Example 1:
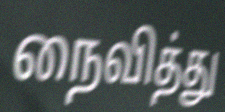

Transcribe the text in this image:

நைவித்து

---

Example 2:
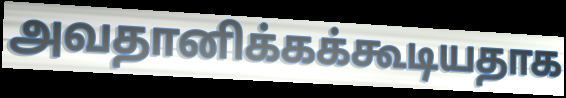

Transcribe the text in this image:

அவதானிக்கக்கூடியதாக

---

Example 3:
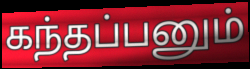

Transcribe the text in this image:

கந்தப்பனும்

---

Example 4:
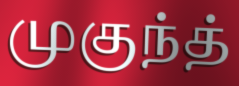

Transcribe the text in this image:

முகுந்த்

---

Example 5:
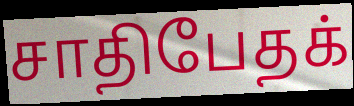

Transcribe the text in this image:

சாதிபேதக்